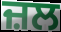
ਜ਼ਲ